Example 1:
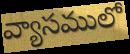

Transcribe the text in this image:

వ్యాసములో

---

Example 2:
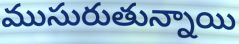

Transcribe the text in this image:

ముసురుతున్నాయి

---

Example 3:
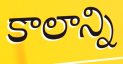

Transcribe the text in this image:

కాలాన్ని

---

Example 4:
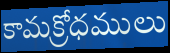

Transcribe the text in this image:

కామక్రోధములు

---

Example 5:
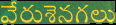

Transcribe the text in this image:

వేరుశెనగలు